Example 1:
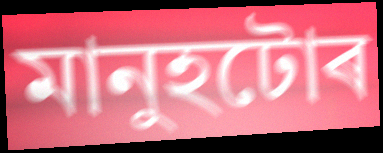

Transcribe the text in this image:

মানুহটোৰ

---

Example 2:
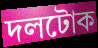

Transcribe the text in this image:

দলটোক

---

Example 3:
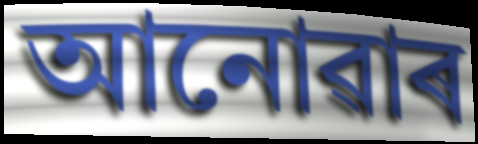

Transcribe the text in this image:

আনোৱাৰ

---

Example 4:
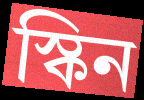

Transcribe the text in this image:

স্কিন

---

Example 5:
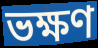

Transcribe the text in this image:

ভক্ষণ